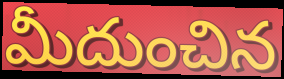
మీదుంచిన